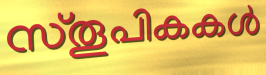
സ്തൂപികകൾ